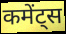
कमेंट्स